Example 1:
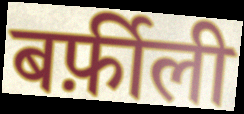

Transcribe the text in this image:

बर्फ़ीली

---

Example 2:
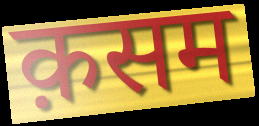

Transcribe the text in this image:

क़सम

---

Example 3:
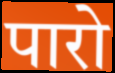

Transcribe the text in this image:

पारो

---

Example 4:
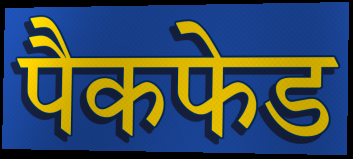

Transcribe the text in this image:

पैकफेड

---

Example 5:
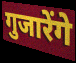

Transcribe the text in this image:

गुजारेंगे